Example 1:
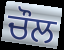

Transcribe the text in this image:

ਚੌਲ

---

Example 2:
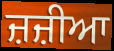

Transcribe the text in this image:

ਜ਼ਜ਼ੀਆ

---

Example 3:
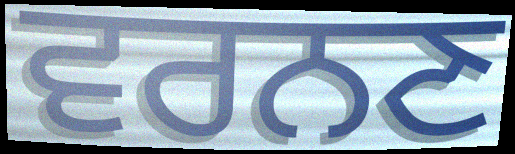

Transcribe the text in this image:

ਵਰਨਣ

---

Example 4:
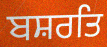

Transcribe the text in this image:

ਬਸ਼ਰਤਿ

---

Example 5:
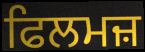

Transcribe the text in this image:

ਫਿਲਮਜ਼